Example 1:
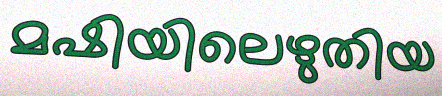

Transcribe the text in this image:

മഷിയിലെഴുതിയ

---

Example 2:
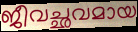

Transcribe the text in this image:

ജീവച്ഛവമായ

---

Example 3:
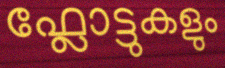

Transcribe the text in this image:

ഫ്ലോട്ടുകളും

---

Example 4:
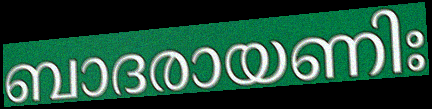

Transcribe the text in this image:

ബാദരായണിഃ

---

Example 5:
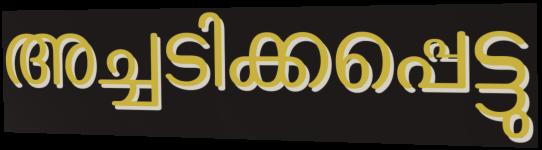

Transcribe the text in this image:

അച്ചടിക്കപ്പെട്ടു